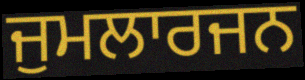
ਜੁਮਲਾਰਜਨ